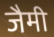
जैमी